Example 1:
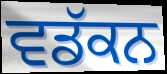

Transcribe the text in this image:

ਵਡੱਕਨ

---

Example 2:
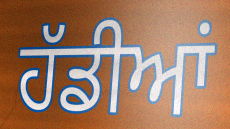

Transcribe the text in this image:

ਹੱਡੀਆਂ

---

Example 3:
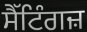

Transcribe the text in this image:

ਸੈੱਟਿੰਗਜ਼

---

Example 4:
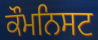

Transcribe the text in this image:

ਕੌਮਨਿਸਟ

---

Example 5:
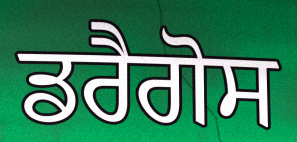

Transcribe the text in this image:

ਡਰੈਗੋਸ